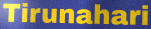
Tirunahari